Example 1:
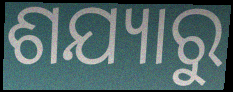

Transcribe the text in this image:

ଶଯ୍ୟାରୁ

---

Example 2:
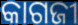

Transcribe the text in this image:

କାଗଜୀ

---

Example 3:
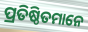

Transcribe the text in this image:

ପ୍ରତିଷ୍ଠିତମାନେ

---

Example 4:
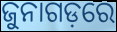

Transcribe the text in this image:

ଜୁନାଗଡ଼ରେ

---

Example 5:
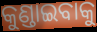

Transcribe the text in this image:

କୁଣ୍ଡାଇବାକୁ